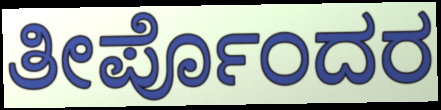
ತೀರ್ಪೊಂದರ